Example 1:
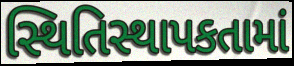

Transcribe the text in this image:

સ્થિતિસ્થાપકતામાં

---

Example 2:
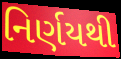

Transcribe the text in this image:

નિર્ણયથી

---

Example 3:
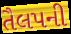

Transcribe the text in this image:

તૈલપની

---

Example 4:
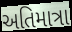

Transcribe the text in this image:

અતિમાત્રા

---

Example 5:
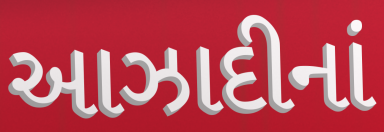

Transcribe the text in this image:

આઝાદીનાં